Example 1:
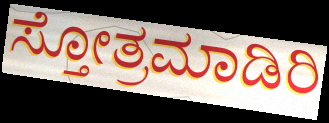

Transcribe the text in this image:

ಸ್ತೋತ್ರಮಾಡಿರಿ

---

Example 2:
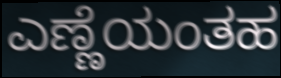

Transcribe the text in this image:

ಎಣ್ಣೆಯಂತಹ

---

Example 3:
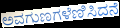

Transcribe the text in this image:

ಅವಗುಣಗಳೆಣಿಸಿದನೆ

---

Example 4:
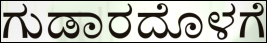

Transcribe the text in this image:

ಗುಡಾರದೊಳಗೆ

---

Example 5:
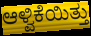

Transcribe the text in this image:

ಆಳ್ವಿಕೆಯಿತ್ತು